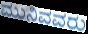
ಮುನಿವವರು